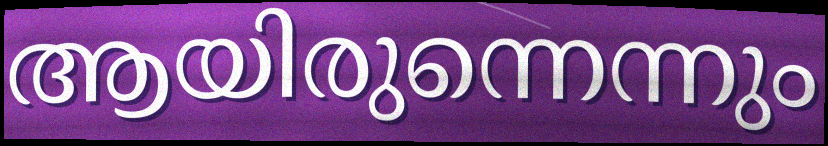
ആയിരുന്നെന്നും